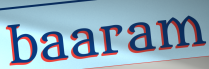
baaram